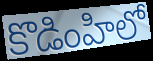
కొడింహిలో